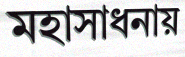
মহাসাধনায়